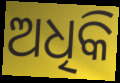
ଅଧିକି